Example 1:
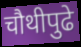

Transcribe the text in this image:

चौथीपुढे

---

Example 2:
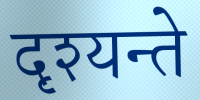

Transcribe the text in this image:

दृश्यन्ते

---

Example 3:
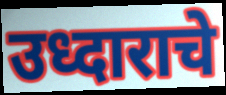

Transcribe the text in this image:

उध्दाराचे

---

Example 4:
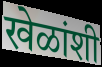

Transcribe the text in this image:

खेळांशी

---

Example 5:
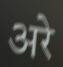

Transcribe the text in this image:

अरे